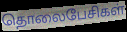
தொலைபேசிகள்